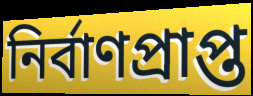
নির্বাণপ্রাপ্ত